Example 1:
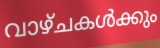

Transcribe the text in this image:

വാഴ്ചകൾക്കും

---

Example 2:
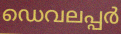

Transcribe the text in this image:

ഡെവലപ്പർ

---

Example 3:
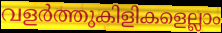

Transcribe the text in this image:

വളർത്തുകിളികളെല്ലാം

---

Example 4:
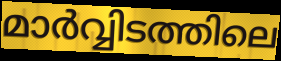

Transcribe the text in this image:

മാർവ്വിടത്തിലെ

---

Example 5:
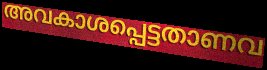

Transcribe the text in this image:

അവകാശപ്പെട്ടതാണവ